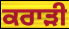
ਕਰਾੜੀ